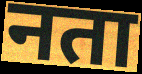
नता